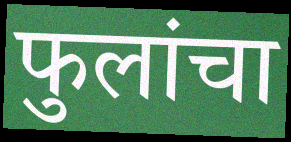
फुलांचा